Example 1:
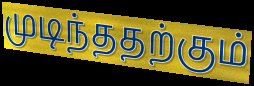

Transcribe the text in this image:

முடிந்ததற்கும்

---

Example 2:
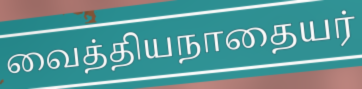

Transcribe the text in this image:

வைத்தியநாதையர்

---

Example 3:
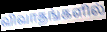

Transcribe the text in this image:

விவாதங்களில்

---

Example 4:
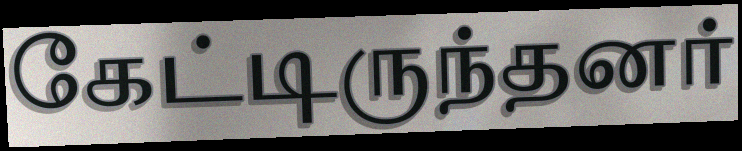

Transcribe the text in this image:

கேட்டிருந்தனர்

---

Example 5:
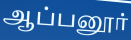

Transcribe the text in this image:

ஆப்பனூர்